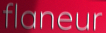
flaneur